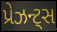
પ્રેઝન્ટ્સ